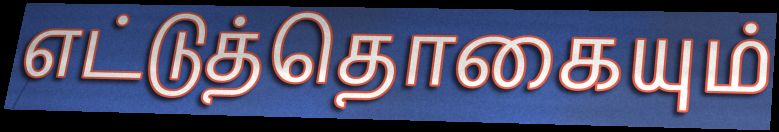
எட்டுத்தொகையும்